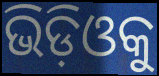
ଭିଡ଼ିଓକୁ